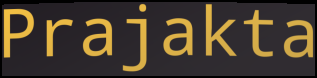
Prajakta